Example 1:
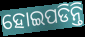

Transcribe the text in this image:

ହୋଇପଡିନ୍ତି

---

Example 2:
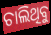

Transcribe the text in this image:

ଚାଲିଥିବୁ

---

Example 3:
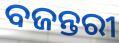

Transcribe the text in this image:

ବଜନ୍ତରୀ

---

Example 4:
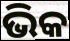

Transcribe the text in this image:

ଭିକ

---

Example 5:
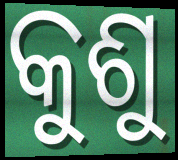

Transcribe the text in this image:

କୁଶୁ